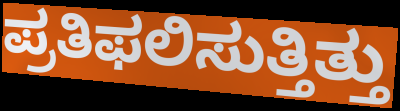
ಪ್ರತಿಫಲಿಸುತ್ತಿತ್ತು